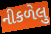
નીકળેલુ